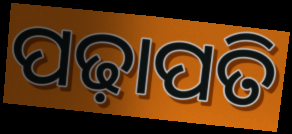
ପଢ଼ାପତି